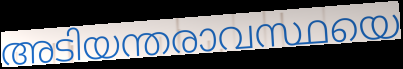
അടിയന്തരാവസ്ഥയെ